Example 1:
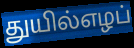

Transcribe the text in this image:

துயில்எழப்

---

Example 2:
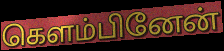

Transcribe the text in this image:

கெளம்பினேன்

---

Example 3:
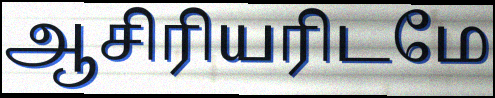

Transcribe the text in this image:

ஆசிரியரிடமே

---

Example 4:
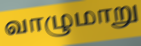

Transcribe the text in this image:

வாழுமாறு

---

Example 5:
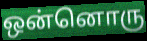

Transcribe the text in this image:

ஒன்னொரு